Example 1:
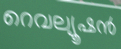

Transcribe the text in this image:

റെവല്യൂഷൻ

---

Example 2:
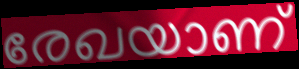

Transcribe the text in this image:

രേഖയാണ്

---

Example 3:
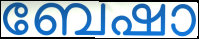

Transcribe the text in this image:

ബേഷാ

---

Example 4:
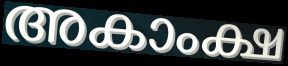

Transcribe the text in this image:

അകാംക്ഷ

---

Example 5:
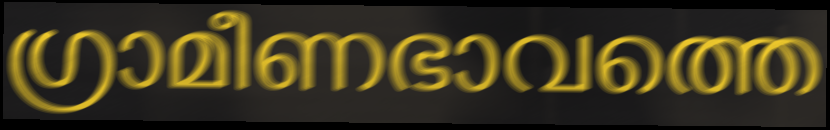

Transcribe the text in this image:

ഗ്രാമീണഭാവത്തെ